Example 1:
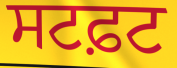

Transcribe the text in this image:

ਸਟਫ਼ਟ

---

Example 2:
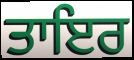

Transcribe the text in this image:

ਤਾਇਰ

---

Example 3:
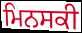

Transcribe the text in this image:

ਮਿਨਸਕੀ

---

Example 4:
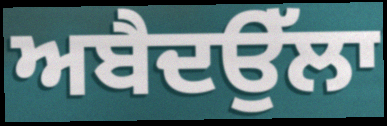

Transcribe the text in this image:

ਅਬੈਦਉੱਲਾ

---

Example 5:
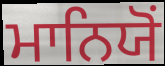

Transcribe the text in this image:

ਮਾਨਿਯੋਂ